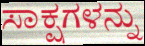
ಸಾಕ್ಷಗಳನ್ನು